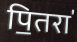
पि॒तरा॑